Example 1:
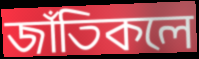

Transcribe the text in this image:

জাঁতিকলে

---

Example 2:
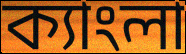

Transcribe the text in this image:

ক্যাংলা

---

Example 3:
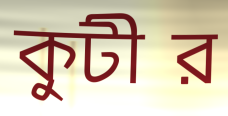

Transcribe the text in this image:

কুটীর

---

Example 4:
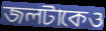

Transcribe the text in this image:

জলটাকেও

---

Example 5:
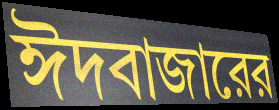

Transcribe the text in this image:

ঈদবাজারের